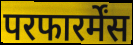
परफारर्मेंस